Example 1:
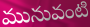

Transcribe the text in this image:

మునువంటి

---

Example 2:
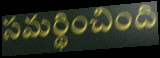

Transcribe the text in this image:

సమర్థించింది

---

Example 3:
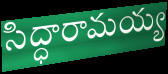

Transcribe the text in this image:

సిద్ధారామయ్య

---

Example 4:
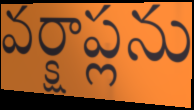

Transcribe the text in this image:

వర్క్షాప్లను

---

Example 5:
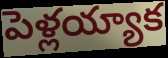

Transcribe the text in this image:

పెళ్లయ్యాక